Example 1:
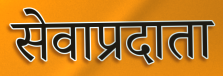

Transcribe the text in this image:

सेवाप्रदाता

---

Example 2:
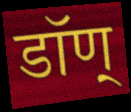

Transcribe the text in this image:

डॉण्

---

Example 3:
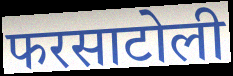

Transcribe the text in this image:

फरसाटोली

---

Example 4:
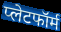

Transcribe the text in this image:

प्लेटफॉर्म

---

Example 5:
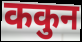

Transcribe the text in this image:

ककुन